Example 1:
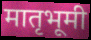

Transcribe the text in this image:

मातृभूमी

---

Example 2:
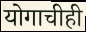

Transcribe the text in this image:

योगाचीही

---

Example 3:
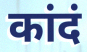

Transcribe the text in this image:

कांदं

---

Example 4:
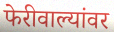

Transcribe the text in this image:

फेरीवाल्यांवर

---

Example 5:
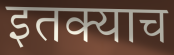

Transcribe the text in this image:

इतक्याच